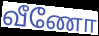
வீணோ